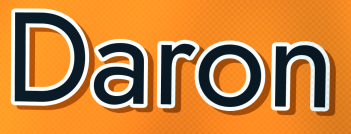
Daron